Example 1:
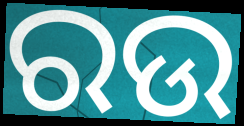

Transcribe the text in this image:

ରଉ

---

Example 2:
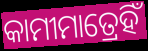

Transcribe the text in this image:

କାମୀମାତ୍ରେହିଁ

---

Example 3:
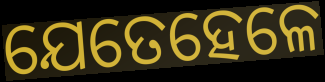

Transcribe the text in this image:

ଯେତେହେଳେ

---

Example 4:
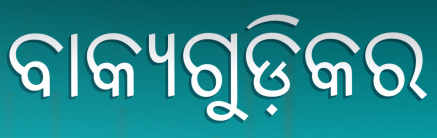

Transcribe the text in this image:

ବାକ୍ୟଗୁଡ଼ିକର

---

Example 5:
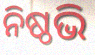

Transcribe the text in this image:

ନିଷ୍ଠଭି